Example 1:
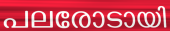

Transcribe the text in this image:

പലരോടായി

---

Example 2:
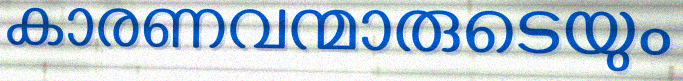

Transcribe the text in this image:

കാരണവന്മാരുടെയും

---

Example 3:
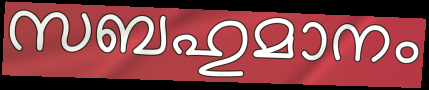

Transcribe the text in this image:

സബഹുമാനം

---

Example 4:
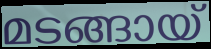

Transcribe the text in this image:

മടങ്ങായ്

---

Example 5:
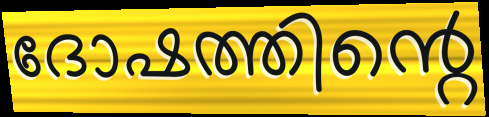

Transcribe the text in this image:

ദോഷത്തിന്റെ